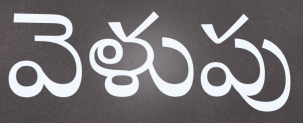
వెళుపు